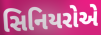
સિનિયરોએ